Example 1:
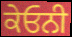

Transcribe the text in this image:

ਕੇਓਨੀ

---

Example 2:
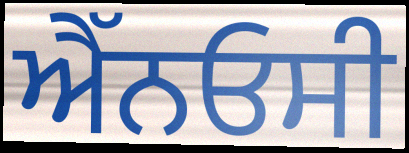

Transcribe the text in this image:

ਐੱਨਓਸੀ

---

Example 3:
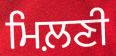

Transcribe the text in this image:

ਮਿਲ਼ਣੀ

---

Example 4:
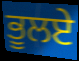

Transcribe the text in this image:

ਭੂਲਏ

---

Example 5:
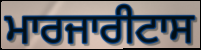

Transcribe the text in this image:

ਮਾਰਜਾਰੀਟਾਸ